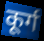
कूर्ग